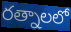
రత్నాలలో